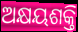
ଅକ୍ଷୟଶକ୍ତି